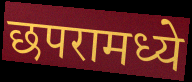
छपरामध्ये